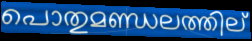
പൊതുമണ്ഡലത്തില്